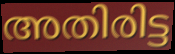
അതിരിട്ട